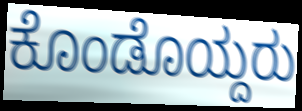
ಕೊಂಡೊಯ್ದರು